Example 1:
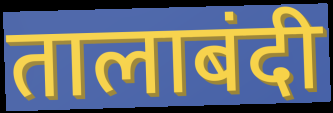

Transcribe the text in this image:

तालाबंदी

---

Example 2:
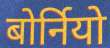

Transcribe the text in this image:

बोर्नियो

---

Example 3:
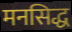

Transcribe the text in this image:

मनसिद्ध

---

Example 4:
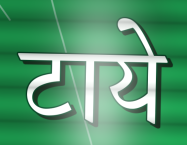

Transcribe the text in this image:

टाये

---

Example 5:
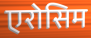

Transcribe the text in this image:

एरोसिम